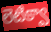
లెటిక్వా